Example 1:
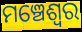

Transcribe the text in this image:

ମଞ୍ଚେଶ୍ଵର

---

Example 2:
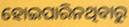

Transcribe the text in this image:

ହୋଇପାରିନଥିବାରୁ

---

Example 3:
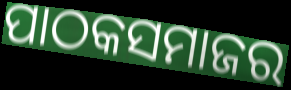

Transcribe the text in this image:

ପାଠକସମାଜର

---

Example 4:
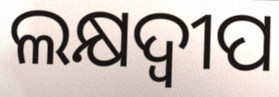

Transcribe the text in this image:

ଲକ୍ଷଦ୍ୱୀପ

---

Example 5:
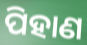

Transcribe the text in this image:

ପିହାଣ